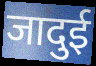
जादुई